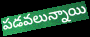
పడవలున్నాయి